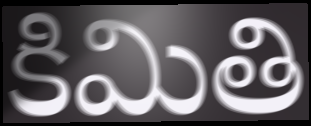
కిమితి